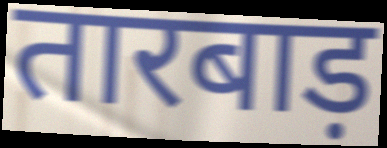
तारबाड़